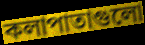
কলাপাতাগুলো